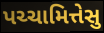
પચ્ચામિત્તેસુ